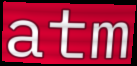
atm